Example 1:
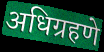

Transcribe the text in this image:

अधिग्रहणे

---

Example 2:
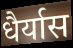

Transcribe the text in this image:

धैर्यास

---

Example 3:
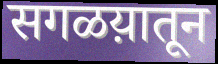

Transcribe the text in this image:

सगळय़ातून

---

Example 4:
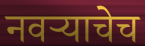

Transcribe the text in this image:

नवऱ्याचेच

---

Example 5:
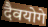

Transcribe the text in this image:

दैवयोगे